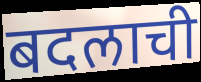
बदलाची